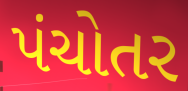
પંચોતર